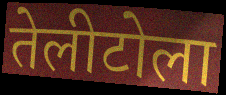
तेलीटोला